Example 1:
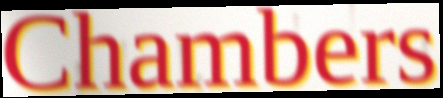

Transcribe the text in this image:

Chambers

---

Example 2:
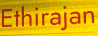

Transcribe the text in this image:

Ethirajan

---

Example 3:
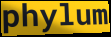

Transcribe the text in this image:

phylum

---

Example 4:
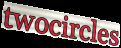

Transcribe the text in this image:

twocircles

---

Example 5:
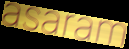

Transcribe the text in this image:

asaram